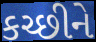
કચ્છીને